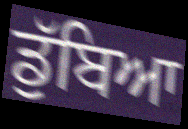
ਡੁੱਬਿਆ